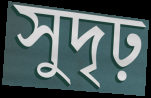
সুদৃঢ়